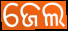
ଜେଲ